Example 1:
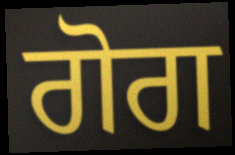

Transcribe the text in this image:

ਗੋਗ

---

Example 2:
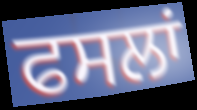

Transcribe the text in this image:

ਫਸਲਾਂ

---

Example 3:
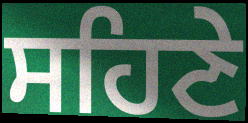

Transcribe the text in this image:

ਸਹਿਣੇ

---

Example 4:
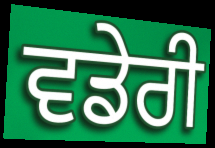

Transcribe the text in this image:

ਵਡੇਰੀ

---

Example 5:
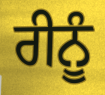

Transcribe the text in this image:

ਰੀਨੂੰ